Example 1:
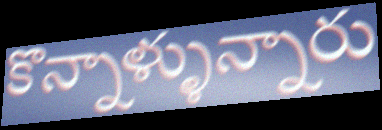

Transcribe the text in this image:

కొన్నాళ్ళున్నారు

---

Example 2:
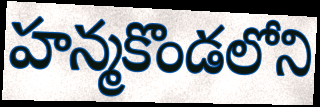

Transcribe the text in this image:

హన్మకొండలోని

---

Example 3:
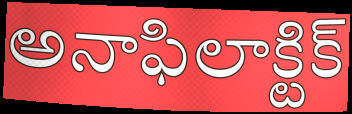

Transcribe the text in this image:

అనాఫిలాక్టిక్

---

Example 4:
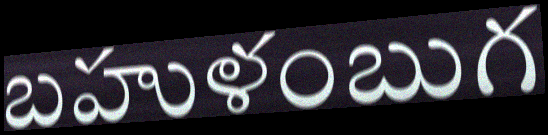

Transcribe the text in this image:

బహుళంబుగ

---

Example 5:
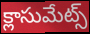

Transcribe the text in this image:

క్లాసుమేట్స్